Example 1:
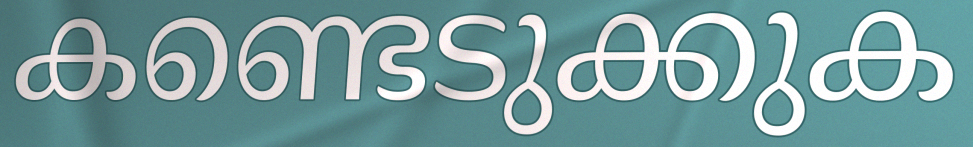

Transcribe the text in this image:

കണ്ടെടുക്കുക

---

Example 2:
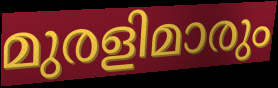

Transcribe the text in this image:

മുരളിമാരും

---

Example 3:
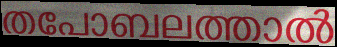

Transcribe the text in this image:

തപോബലത്താൽ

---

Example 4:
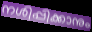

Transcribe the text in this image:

നശിപ്പിക്കാനും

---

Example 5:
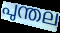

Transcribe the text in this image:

പുന്തല